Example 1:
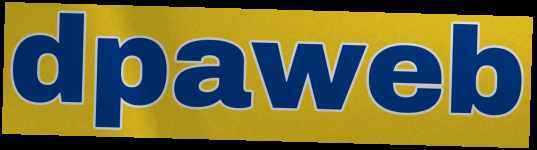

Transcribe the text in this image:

dpaweb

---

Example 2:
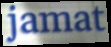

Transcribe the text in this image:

jamat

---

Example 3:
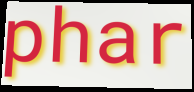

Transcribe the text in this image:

phar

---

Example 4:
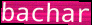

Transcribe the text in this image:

bachar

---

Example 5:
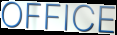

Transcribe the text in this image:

OFFICE